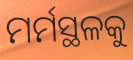
ମର୍ମସ୍ଥଳକୁ